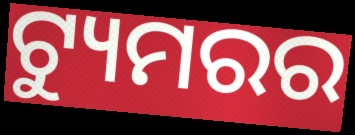
ଟ୍ୟୁମରର